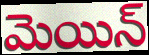
మెయిన్